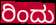
ರಿಂದು